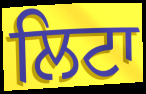
ਲਿਟਾ